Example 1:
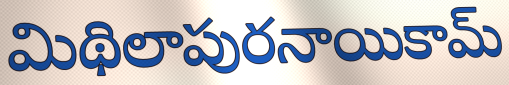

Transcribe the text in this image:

మిథిలాపురనాయికామ్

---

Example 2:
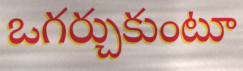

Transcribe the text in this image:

ఒగర్చుకుంటూ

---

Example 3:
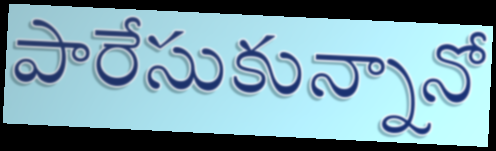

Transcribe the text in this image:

పారేసుకున్నానో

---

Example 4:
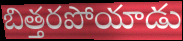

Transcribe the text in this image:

బిత్తరపోయాడు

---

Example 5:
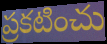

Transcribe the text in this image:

ప్రకటించు